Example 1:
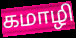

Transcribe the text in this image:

கமாழி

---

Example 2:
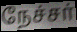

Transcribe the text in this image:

நேச்சர்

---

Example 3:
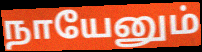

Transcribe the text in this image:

நாயேனும்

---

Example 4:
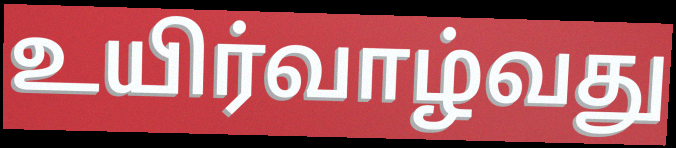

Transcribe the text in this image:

உயிர்வாழ்வது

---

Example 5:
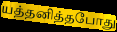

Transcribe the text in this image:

யத்தனித்தபோது